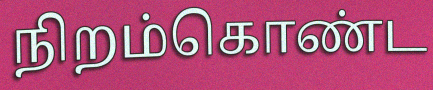
நிறம்கொண்ட